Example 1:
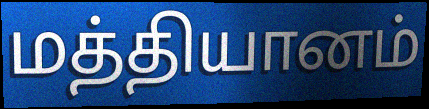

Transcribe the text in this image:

மத்தியானம்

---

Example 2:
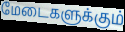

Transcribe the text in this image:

மேடைகளுக்கும்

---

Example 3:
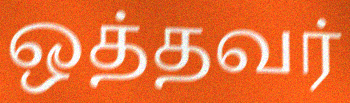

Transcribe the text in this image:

ஒத்தவர்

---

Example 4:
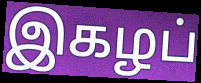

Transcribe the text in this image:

இகழப்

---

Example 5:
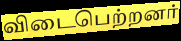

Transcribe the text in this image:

விடைபெற்றனர்